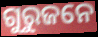
ଗୁରୁଜନେ